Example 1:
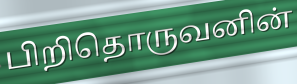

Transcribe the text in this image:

பிறிதொருவனின்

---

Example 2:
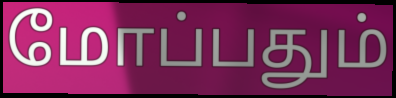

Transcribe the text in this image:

மோப்பதும்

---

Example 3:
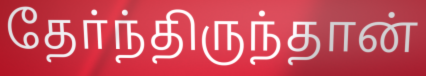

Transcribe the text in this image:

தேர்ந்திருந்தான்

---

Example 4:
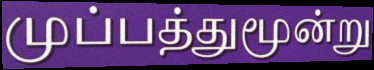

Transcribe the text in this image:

முப்பத்துமூன்று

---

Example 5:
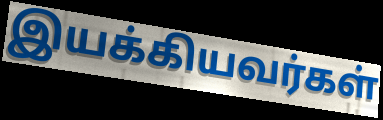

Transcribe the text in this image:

இயக்கியவர்கள்